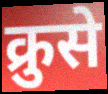
क्रुसे